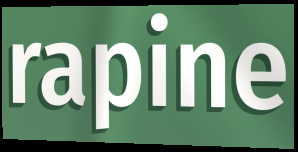
rapine